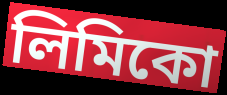
লিমিকো